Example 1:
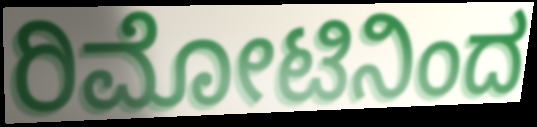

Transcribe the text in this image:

ರಿಮೋಟಿನಿಂದ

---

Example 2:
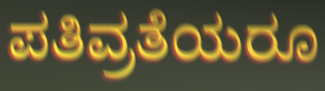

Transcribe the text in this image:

ಪತಿವ್ರತೆಯರೂ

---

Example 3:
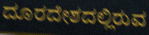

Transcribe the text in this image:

ದೂರದೇಶದಲ್ಲಿರುವ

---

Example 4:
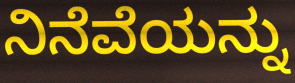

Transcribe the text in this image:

ನಿನೆವೆಯನ್ನು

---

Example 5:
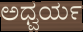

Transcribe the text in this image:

ಅಧ್ವರ್ಯ